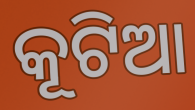
କୂଟିଆ